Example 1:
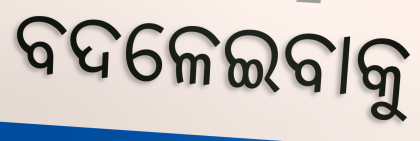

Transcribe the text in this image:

ବଦଳେଇବାକୁ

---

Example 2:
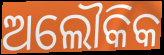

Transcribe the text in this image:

ଅଲୌକିକ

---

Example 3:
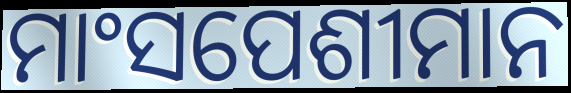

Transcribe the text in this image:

ମାଂସପେଶୀମାନ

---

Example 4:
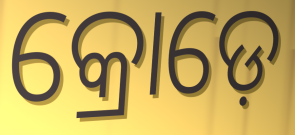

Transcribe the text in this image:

କ୍ରୋଡ଼େ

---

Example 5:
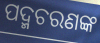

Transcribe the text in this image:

ପଦ୍ମଚରଣଙ୍କ